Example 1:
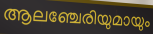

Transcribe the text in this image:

ആലഞ്ചേരിയുമായും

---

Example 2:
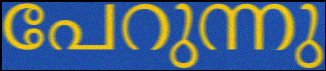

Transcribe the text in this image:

പേറുന്നു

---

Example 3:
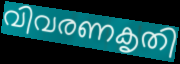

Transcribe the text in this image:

വിവരണകൃതി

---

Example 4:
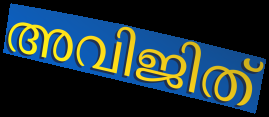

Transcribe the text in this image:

അവിജിത്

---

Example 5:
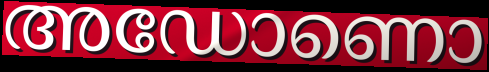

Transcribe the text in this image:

അഡോണൊ